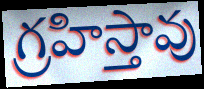
గ్రహిస్తావు